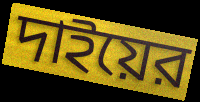
দাইয়ের